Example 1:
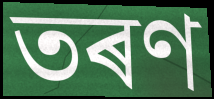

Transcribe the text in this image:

তৰণ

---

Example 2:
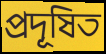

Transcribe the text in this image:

প্ৰদূষিত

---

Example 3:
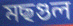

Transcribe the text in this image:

মছগুল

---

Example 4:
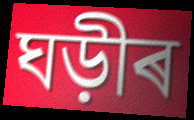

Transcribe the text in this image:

ঘড়ীৰ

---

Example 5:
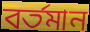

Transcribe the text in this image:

বৰ্তমান